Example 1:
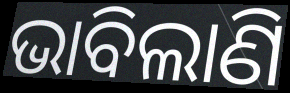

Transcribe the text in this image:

ଭାବିଲାଣି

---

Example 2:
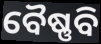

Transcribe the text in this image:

ବୈଷ୍ଣବି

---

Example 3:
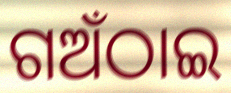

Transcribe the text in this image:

ଗଅଁଠାଇ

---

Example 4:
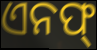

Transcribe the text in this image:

ଏନଫ୍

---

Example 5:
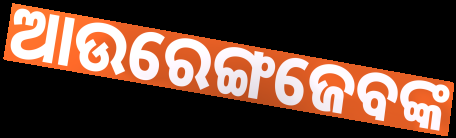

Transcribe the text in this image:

ଆଉରେଙ୍ଗଜେବଙ୍କ